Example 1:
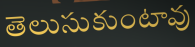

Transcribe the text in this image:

తెలుసుకుంటావు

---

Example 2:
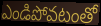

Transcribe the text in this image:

ఎండిపోవటంతో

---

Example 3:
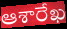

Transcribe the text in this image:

ఆశారేఖ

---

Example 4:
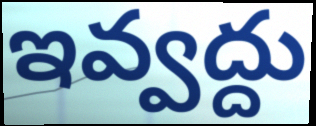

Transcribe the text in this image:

ఇవ్వద్దు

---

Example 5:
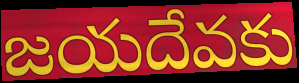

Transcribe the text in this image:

జయదేవకు